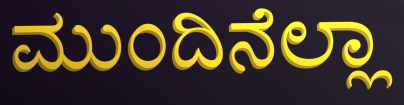
ಮುಂದಿನೆಲ್ಲಾ